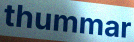
thummar